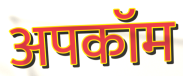
अपकॉम